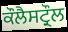
ਕੌਲੈਸਟ੍ਰੌਲ